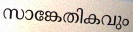
സാങ്കേതികവും